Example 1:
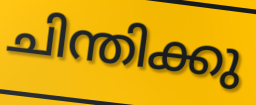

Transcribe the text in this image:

ചിന്തിക്കു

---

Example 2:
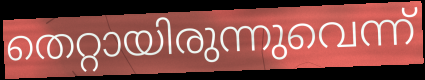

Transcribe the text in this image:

തെറ്റായിരുന്നുവെന്ന്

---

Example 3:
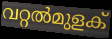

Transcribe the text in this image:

വറ്റൽമുളക്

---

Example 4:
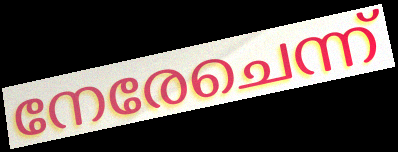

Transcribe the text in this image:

നേരേചെന്ന്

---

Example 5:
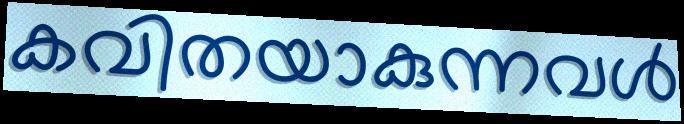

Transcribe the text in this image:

കവിതയാകുന്നവൾ